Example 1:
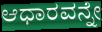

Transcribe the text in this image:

ಆಧಾರವನ್ನೇ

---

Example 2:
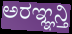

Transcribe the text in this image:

ಅರಞ್ಞನ್ತಿ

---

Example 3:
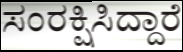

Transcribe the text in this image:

ಸಂರಕ್ಷಿಸಿದ್ದಾರೆ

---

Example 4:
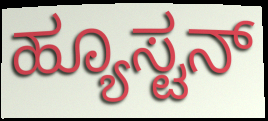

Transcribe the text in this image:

ಹ್ಯೂಸ್ಟನ್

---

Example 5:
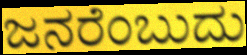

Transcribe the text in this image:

ಜನರೆಂಬುದು